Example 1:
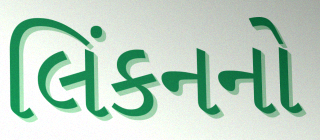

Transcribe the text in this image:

લિંકનનો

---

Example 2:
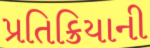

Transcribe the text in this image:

પ્રતિક્રિયાની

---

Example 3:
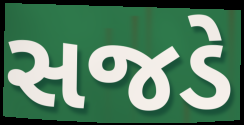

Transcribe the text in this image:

સજડે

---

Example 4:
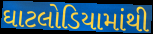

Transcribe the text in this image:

ઘાટલોડિયામાંથી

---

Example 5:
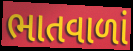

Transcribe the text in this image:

ભાતવાળાં